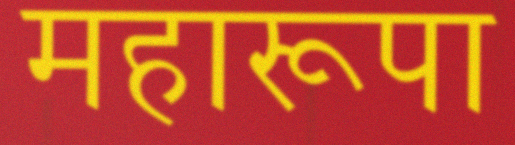
महारूपा